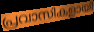
പ്രവാസികളായി